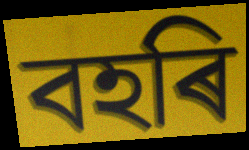
বহৰি